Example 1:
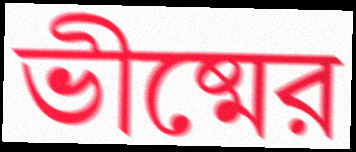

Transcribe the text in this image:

ভীষ্মের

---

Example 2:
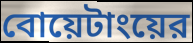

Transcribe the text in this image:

বোয়েটাংয়ের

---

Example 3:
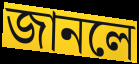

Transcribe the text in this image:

জানলে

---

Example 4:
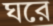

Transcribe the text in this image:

ঘরে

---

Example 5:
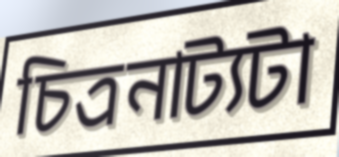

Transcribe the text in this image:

চিত্রনাট্যটা